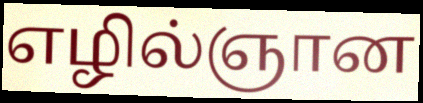
எழில்ஞான